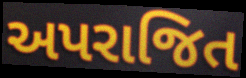
અપરાજિત